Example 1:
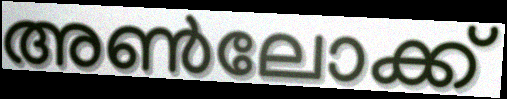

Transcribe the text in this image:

അൺലോക്ക്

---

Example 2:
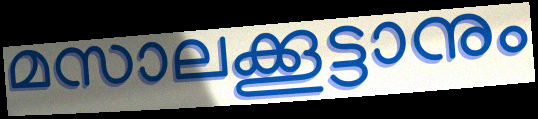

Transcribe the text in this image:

മസാലക്കൂട്ടാനും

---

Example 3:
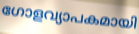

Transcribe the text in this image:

ഗോളവ്യാപകമായി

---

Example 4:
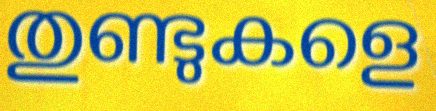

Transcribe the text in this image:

തുണ്ടുകളെ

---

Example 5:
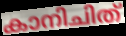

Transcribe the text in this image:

കാനിചിത്